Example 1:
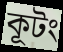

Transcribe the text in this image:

কূটং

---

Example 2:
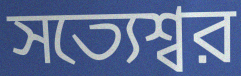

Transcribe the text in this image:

সত্যেশ্বর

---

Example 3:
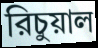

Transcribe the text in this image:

রিচুয়াল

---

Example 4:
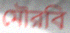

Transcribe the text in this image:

মৌরবি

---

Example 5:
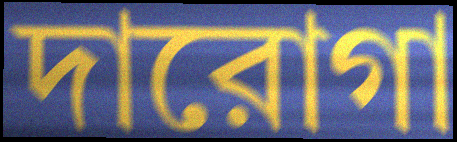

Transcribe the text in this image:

দারোগা